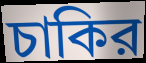
চাকির